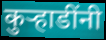
कुर्‍हाडींनी